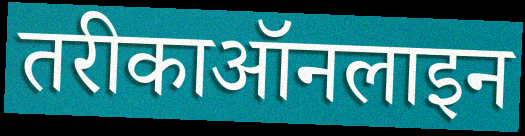
तरीकाऑनलाइन